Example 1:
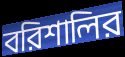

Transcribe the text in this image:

বরিশালির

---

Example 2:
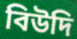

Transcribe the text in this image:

বিউদি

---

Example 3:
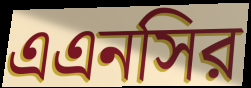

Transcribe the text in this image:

এএনসির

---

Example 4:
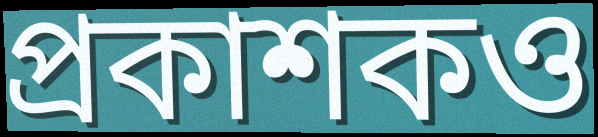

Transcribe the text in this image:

প্রকাশকও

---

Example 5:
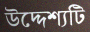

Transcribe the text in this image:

উদ্দেশ্যটি